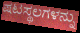
ಷಟಸ್ಥಲಗಳನ್ನು